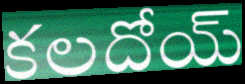
కలదోయ్